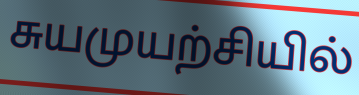
சுயமுயற்சியில்